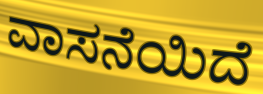
ವಾಸನೆಯಿದೆ